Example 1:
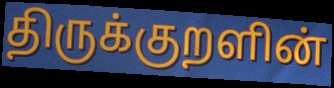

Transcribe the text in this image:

திருக்குறளின்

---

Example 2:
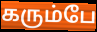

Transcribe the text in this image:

கரும்பே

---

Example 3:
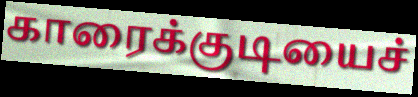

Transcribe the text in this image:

காரைக்குடியைச்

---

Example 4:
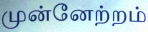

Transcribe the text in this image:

முன்னேற்றம்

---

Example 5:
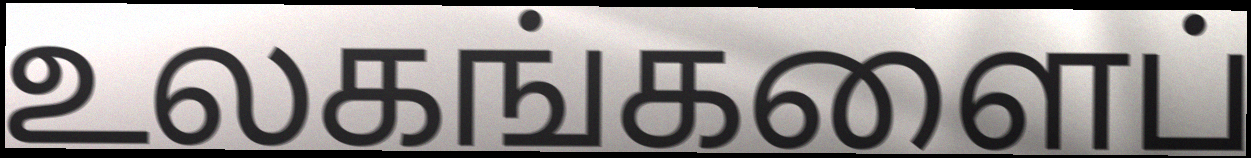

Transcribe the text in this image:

உலகங்களைப்